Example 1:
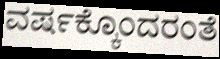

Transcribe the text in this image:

ವರ್ಷಕ್ಕೊಂದರಂತೆ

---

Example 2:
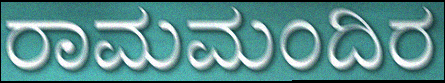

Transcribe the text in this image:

ರಾಮಮಂದಿರ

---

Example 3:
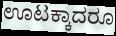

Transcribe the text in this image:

ಊಟಕ್ಕಾದರೂ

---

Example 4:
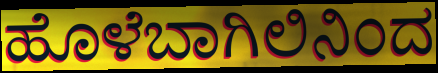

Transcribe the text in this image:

ಹೊಳೆಬಾಗಿಲಿನಿಂದ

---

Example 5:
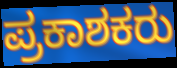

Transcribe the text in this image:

ಪ್ರಕಾಶಕರು